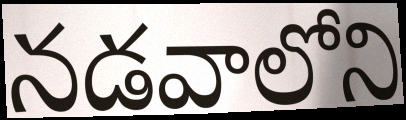
నడవాలోని